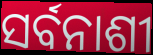
ସର୍ବନାଶୀ